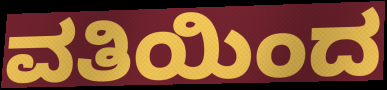
ವತಿಯಿಂದ